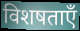
विशषताएँ